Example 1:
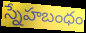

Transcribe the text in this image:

స్నేహబంధం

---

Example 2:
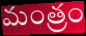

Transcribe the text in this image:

మంత్రం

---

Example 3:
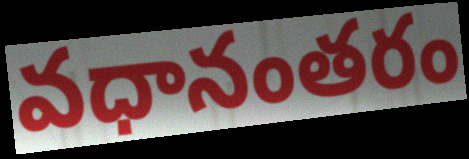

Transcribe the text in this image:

వధానంతరం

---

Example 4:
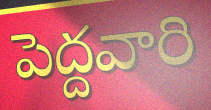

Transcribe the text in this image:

పెద్దవారి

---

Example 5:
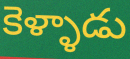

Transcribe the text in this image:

కెళ్ళాడు